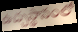
ఉచ్చస్థానంలో